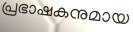
പ്രഭാഷകനുമായ